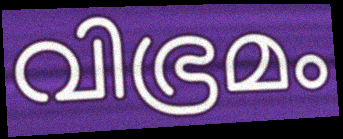
വിഭ്രമം